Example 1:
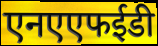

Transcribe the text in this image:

एनएएफईडी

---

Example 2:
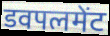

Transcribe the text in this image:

डवपलमेंट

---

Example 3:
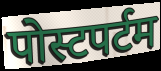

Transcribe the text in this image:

पोस्टपर्टम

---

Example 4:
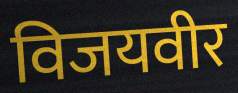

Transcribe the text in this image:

विजयवीर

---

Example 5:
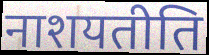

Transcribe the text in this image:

नाशयतीति